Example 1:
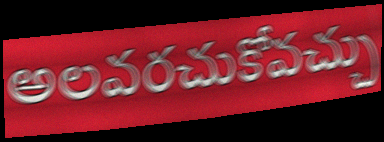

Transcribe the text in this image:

అలవరచుకోవచ్చు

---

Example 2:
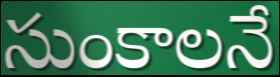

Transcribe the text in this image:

సుంకాలనే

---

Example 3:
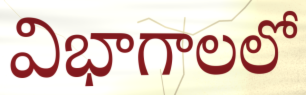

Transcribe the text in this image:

విభాగాలలో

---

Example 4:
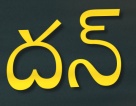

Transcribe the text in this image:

దన్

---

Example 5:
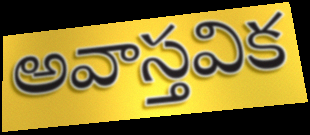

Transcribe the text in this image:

అవాస్తవిక